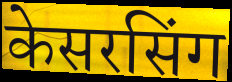
केसरसिंग